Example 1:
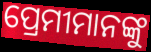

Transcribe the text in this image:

ପ୍ରେମୀମାନଙ୍କୁ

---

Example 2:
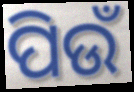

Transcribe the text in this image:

ପିଉଁ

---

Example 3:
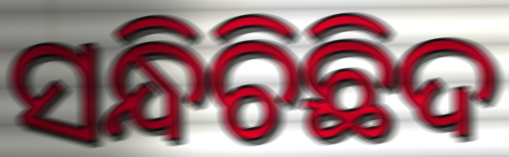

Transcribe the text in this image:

ସନ୍ଧିଚିଛିଦ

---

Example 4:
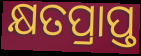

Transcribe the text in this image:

କ୍ଷତପ୍ରାପ୍ତ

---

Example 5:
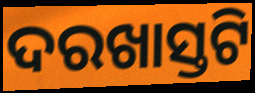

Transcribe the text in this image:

ଦରଖାସ୍ତଟି